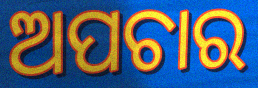
ଅପଚାର